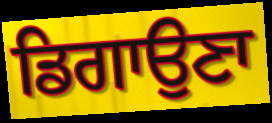
ਡਿਗਾਉਣਾ